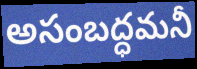
అసంబద్ధమనీ